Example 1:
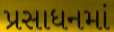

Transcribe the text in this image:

પ્રસાધનમાં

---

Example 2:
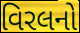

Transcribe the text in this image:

વિરલનો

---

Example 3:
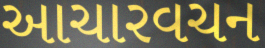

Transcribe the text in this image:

આચારવચન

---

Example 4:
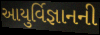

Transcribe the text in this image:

આયુર્વિજ્ઞાનની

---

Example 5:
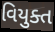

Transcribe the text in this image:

વિયુક્ત